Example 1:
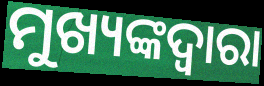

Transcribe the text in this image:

ମୁଖ୍ୟଙ୍କଦ୍ଵାରା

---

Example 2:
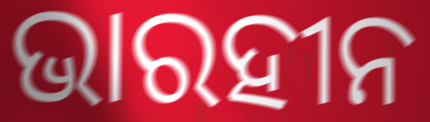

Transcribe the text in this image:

ଭାରହୀନ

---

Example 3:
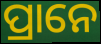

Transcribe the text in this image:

ପ୍ରାନେ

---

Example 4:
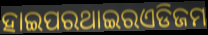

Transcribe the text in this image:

ହାଇପରଥାଇରଏଡିଜମ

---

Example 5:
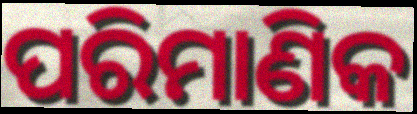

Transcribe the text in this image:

ପରିମାଣିକ